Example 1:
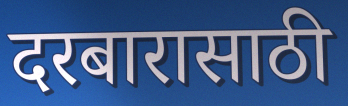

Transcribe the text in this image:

दरबारासाठी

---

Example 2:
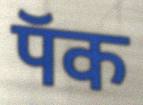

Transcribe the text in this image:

पॅक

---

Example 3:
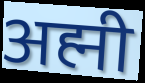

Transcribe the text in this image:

अह्मी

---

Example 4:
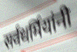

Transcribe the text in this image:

सर्वधर्मियांनी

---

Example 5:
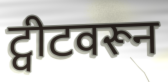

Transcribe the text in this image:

ट्वीटवरून